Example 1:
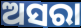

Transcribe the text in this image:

ଅସରା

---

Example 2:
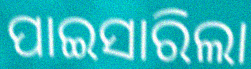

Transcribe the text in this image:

ପାଇସାରିଲା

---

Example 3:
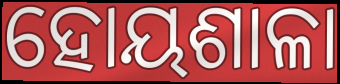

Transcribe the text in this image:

ହୋୟଶାଳା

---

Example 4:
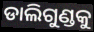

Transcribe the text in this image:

ଡାଲିଗୁଣ୍ଡକୁ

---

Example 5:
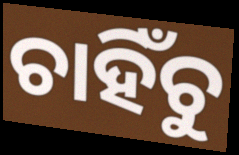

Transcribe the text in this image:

ଚାହିଁଚୁ